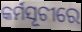
କର୍ମସୂଚୀରେ